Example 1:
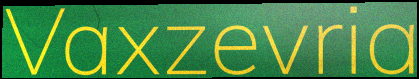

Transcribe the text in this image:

Vaxzevria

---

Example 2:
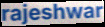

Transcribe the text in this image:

rajeshwar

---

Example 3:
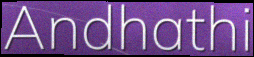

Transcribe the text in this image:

Andhathi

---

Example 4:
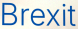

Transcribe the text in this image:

Brexit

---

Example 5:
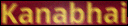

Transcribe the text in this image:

Kanabhai